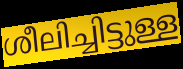
ശീലിച്ചിട്ടുള്ള